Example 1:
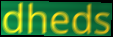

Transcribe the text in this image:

dheds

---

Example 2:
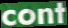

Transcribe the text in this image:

cont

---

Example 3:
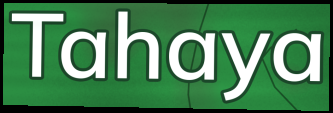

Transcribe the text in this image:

Tahaya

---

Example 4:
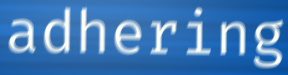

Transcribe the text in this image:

adhering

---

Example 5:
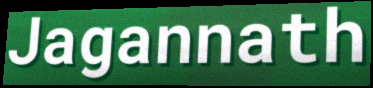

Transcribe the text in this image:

Jagannath